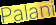
Palani